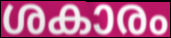
ശകാരം